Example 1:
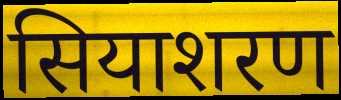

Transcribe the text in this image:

सियाशरण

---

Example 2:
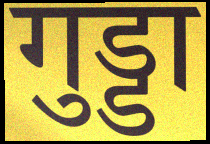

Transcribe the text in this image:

गुड्डा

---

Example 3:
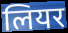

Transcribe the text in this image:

लियर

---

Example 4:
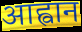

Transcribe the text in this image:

आह्वान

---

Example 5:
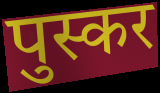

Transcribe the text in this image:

पुस्कर